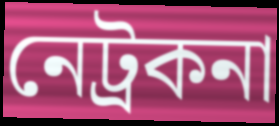
নেট্ৰকনা